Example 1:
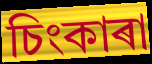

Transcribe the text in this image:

চিংকাৰা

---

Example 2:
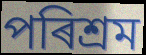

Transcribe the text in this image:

পৰিশ্ৰম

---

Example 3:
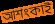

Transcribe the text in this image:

আশংকাই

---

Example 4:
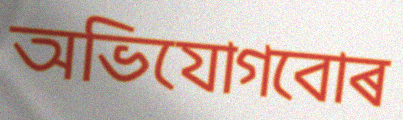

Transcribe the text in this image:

অভিযোগবোৰ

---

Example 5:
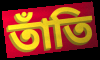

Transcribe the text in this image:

তাঁতি